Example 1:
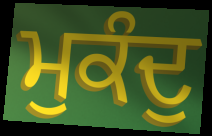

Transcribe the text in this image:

ਮੁਕੰਦੁ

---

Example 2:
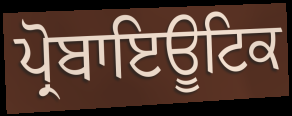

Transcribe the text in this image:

ਪ੍ਰੋਬਾਇਊਟਿਕ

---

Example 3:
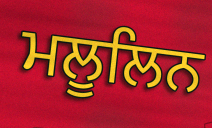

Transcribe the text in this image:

ਮਲੂਲਿਨ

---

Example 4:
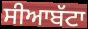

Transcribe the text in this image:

ਸੀਆਬੱਟਾ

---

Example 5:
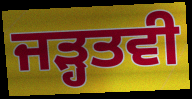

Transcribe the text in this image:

ਜੜ੍ਹਤਵੀ